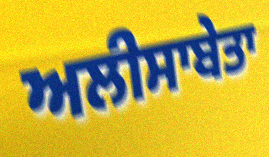
ਅਲੀਸਾਬੇਤਾ